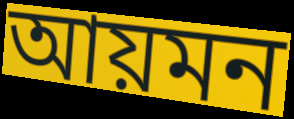
আয়মন